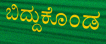
ಬಿದ್ದುಕೊಂಡ